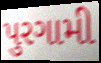
પુરગામી